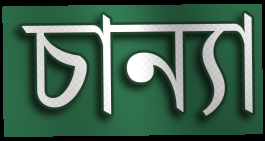
চান্যা